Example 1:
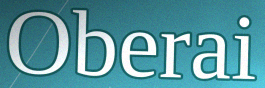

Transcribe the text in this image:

Oberai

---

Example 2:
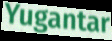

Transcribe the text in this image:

Yugantar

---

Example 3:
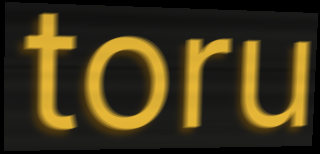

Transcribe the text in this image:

toru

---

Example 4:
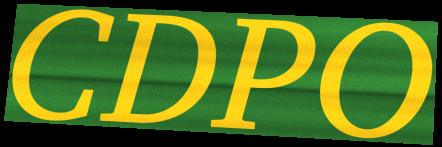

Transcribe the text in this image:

CDPO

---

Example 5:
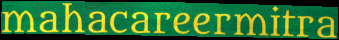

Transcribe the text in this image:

mahacareermitra